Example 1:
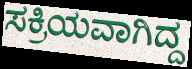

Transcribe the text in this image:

ಸಕ್ರಿಯವಾಗಿದ್ದ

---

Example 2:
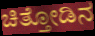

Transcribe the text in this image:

ಚಿತ್ತೋಡಿನ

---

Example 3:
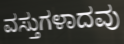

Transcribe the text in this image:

ವಸ್ತುಗಳಾದವು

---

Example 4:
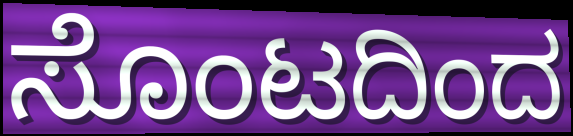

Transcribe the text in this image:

ಸೊಂಟದಿಂದ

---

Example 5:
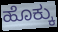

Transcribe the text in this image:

ಹೊಕ್ಕು